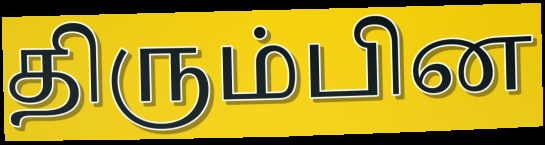
திரும்பின